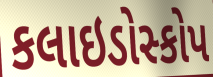
કલાઇડોસ્કોપ